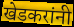
खेडकरांनी